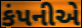
કંપનીએ